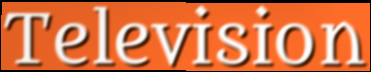
Television